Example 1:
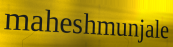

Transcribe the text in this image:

maheshmunjale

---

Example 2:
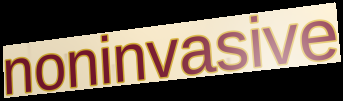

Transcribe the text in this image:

noninvasive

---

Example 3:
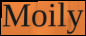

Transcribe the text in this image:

Moily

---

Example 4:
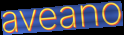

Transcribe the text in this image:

aveano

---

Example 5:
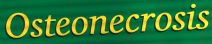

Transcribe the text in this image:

Osteonecrosis